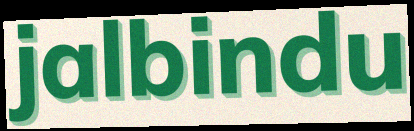
jalbindu